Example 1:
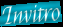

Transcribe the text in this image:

Invitro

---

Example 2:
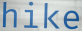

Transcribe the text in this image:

hike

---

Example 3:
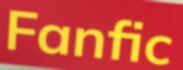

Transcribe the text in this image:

Fanfic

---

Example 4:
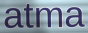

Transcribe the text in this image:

atma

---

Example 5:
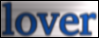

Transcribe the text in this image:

lover